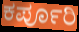
ಕರ್ಪೂರಿ